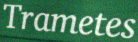
Trametes